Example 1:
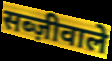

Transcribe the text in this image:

सब्ज़ीवाले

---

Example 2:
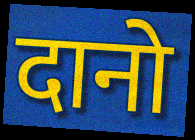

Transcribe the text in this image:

दानो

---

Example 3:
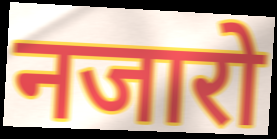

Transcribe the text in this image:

नजारो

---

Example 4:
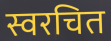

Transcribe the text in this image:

स्वरचित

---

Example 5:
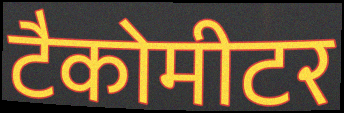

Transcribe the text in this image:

टैकोमीटर